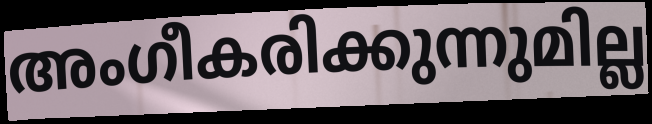
അംഗീകരിക്കുന്നുമില്ല